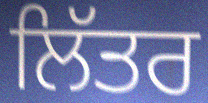
ਲਿੱਤਰ